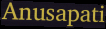
Anusapati